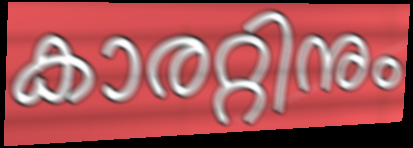
കാരറ്റിനും